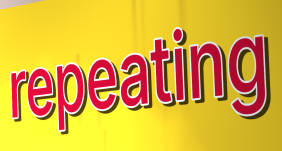
repeating